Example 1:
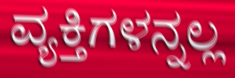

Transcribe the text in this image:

ವ್ಯಕ್ತಿಗಳನ್ನಲ್ಲ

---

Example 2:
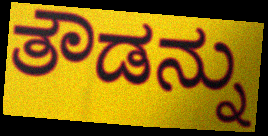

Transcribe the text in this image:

ತೌಡನ್ನು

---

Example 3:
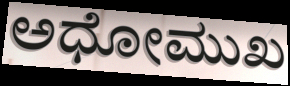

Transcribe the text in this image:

ಅಧೋಮುಖ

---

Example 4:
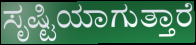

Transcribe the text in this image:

ಸೃಷ್ಟಿಯಾಗುತ್ತಾರೆ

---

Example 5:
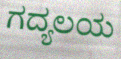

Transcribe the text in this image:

ಗದ್ಯಲಯ